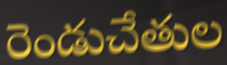
రెండుచేతుల